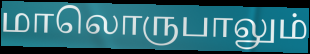
மாலொருபாலும்